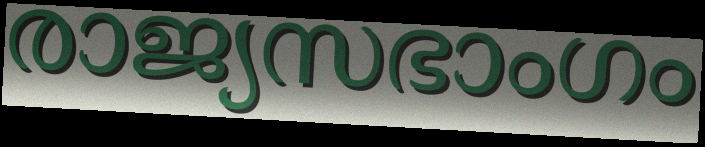
രാജ്യസഭാംഗം